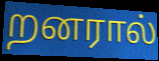
றனரால்